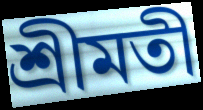
শ্রীমতী